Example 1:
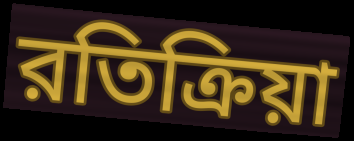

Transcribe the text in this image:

রতিক্রিয়া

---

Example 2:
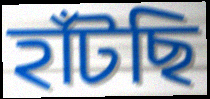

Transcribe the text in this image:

হাঁটছি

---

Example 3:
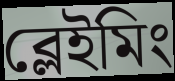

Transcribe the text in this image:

ব্লেইমিং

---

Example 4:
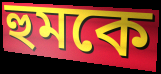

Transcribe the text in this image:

হুমকে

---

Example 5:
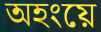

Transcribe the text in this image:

অহংয়ে